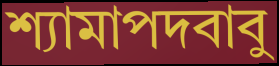
শ্যামাপদবাবু